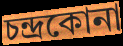
চন্দ্রকোনা